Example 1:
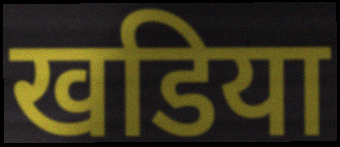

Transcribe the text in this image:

खडिया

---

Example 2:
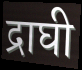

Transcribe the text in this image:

द्राघी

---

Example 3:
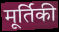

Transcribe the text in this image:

मूर्तिकी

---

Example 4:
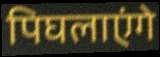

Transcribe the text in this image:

पिघलाएंगे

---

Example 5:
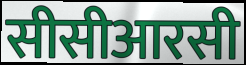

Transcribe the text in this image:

सीसीआरसी